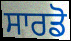
ਸਾਰਡੋ